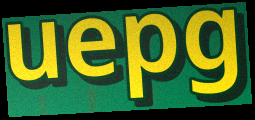
uepg